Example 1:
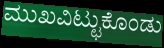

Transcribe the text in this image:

ಮುಖವಿಟ್ಟುಕೊಂಡು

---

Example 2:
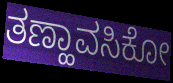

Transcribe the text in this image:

ತಣ್ಹಾವಸಿಕೋ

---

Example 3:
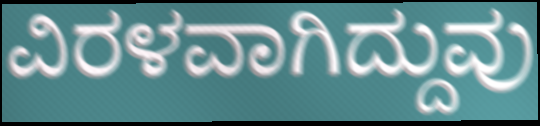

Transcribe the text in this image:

ವಿರಳವಾಗಿದ್ದುವು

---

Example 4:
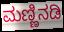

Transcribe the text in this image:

ಮಣ್ಣಿನಡಿ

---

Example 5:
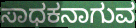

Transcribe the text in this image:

ಸಾಧಕನಾಗುವ